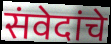
संवेदांचे